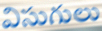
విసుగులు